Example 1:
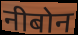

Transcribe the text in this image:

नीबोन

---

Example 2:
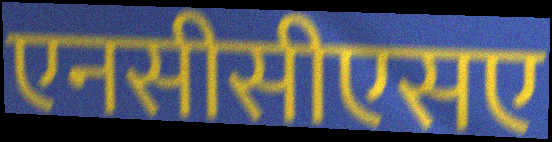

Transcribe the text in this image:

एनसीसीएसए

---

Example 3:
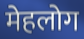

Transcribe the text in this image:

मेहलोग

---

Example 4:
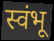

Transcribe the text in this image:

स्वंभू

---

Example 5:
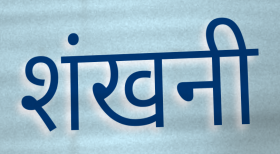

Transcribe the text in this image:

शंखनी